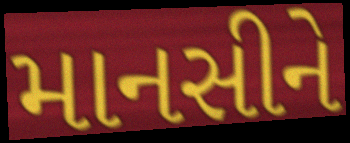
માનસીને